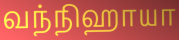
வந்நிஹாயா